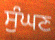
ਸੁੰਘਣ